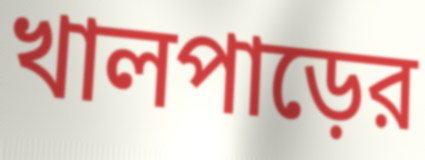
খালপাড়ের